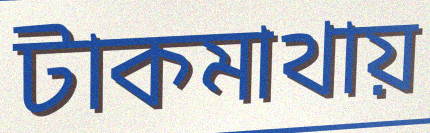
টাকমাথায়